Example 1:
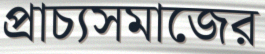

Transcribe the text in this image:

প্রাচ্যসমাজের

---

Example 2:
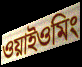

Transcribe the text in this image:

ওয়াইওমিং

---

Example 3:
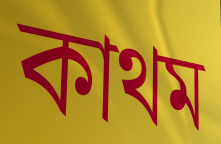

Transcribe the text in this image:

কাথম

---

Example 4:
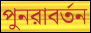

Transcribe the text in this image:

পুনরাবর্তন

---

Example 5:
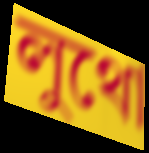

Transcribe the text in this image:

লুথো